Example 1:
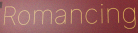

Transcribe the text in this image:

Romancing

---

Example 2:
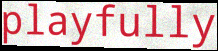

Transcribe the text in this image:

playfully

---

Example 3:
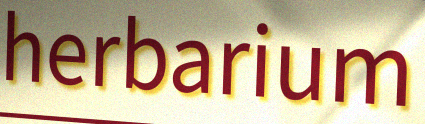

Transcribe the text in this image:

herbarium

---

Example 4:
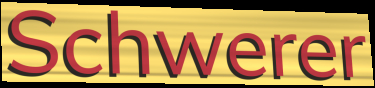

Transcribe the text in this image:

Schwerer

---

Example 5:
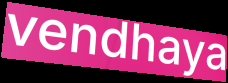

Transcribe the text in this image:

vendhaya